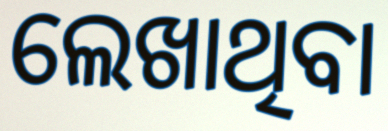
ଲେଖାଥିବା